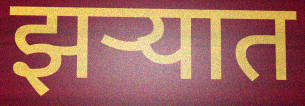
झर्‍यात